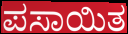
ಪಸಾಯಿತ